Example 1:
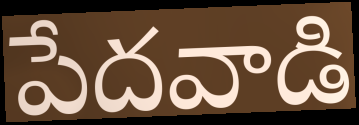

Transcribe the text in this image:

పేదవాడి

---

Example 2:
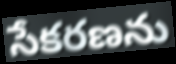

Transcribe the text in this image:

సేకరణను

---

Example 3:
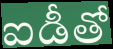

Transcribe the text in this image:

ఐడీతో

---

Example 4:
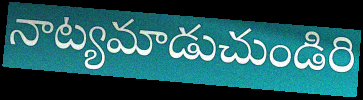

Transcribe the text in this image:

నాట్యమాడుచుండిరి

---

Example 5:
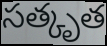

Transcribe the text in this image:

సత్కృత